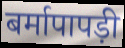
बर्मापापड़ी